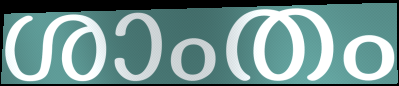
ശാംതം